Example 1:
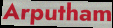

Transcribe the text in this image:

Arputham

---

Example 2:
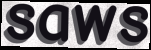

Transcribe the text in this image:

saws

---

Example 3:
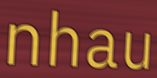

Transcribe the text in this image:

nhau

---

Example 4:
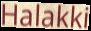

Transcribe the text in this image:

Halakki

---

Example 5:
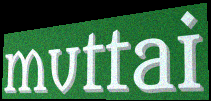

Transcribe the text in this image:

muttai